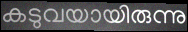
കടുവയായിരുന്നു